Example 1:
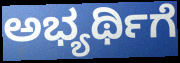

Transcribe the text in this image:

ಅಭ್ಯರ್ಥಿಗೆ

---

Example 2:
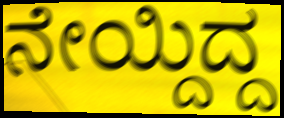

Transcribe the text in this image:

ನೇಯ್ದಿದ್ದ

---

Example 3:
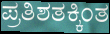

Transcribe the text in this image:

ಪ್ರತಿಶತಕ್ಕಿಂತ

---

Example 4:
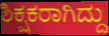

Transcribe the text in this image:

ಶಿಕ್ಷಕರಾಗಿದ್ದು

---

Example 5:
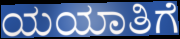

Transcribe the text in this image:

ಯಯಾತಿಗೆ